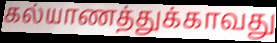
கல்யாணத்துக்காவது